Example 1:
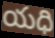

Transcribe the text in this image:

యధి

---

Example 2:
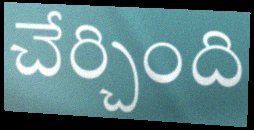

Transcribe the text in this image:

చేర్చింది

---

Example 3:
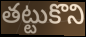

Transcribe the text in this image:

తట్టుకొని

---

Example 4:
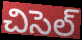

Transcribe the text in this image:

చిసెల్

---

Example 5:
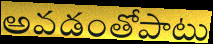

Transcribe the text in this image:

అవడంతోపాటు